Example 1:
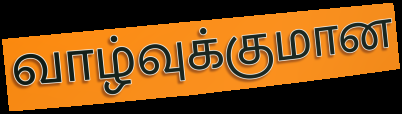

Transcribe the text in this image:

வாழ்வுக்குமான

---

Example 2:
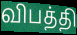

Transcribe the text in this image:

விபத்தி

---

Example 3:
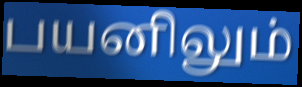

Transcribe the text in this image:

பயனிலும்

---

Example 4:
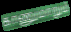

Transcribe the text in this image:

காணுமாறும்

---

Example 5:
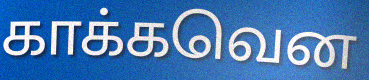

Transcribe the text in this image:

காக்கவென